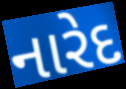
નારેદ